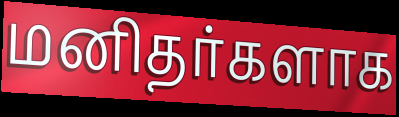
மனிதர்களாக